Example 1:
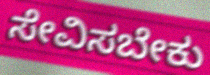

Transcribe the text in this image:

ಸೇವಿಸಬೇಕು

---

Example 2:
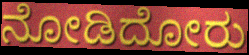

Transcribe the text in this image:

ನೋಡಿದೋರು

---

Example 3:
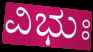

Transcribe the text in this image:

ವಿಭುಃ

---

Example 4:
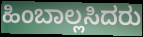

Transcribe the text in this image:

ಹಿಂಬಾಲ್ಲಸಿದರು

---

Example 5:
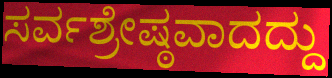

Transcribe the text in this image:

ಸರ್ವಶ್ರೇಷ್ಠವಾದದ್ದು